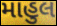
માહુલ